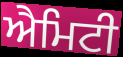
ਐਮਿਟੀ